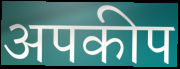
अपकीप